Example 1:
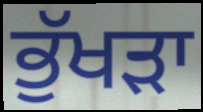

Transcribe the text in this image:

ਭੁੱਖੜਾ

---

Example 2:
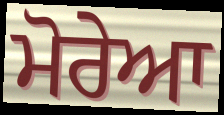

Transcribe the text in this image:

ਮੋਰੇਆ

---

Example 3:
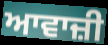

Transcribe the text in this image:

ਆਵਾਜ਼ੀ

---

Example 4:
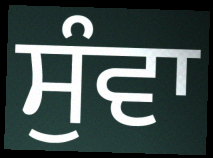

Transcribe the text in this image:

ਸੁੰਵਾ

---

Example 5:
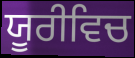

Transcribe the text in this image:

ਯੂਰੀਵਿਚ